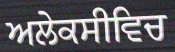
ਅਲੇਕਸੀਵਿਚ